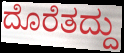
ದೊರೆತದ್ದು